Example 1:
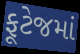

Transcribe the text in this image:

ફૂટેજમાં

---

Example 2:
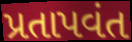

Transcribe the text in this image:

પ્રતાપવંત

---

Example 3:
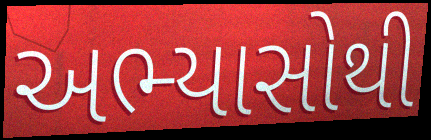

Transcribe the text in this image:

અભ્યાસોથી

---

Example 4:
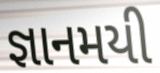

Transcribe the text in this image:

જ્ઞાનમયી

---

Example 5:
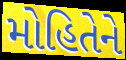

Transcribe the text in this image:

મોહિતેને